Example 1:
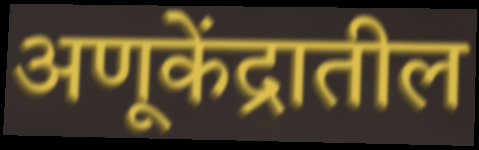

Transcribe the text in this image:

अणूकेंद्रातील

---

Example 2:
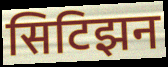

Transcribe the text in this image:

सिटिझन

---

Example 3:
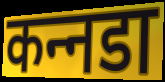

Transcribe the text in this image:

कन्नडा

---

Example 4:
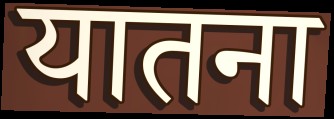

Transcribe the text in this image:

यातना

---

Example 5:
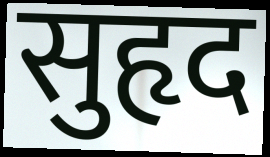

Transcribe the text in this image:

सुहृद